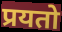
प्रयतो